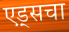
एड्सचा